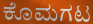
ಕೊಮಗಟ